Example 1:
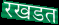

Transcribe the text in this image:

रखडत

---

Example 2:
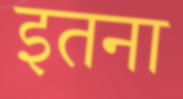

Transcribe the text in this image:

इतना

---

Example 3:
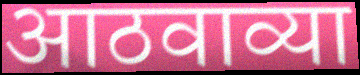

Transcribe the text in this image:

आठवाव्या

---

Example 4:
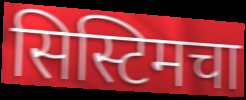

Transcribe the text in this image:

सिस्टिमचा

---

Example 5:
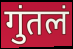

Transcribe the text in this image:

गुंतलं